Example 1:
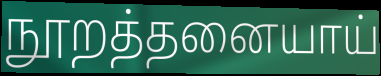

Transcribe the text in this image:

நூறத்தனையாய்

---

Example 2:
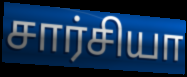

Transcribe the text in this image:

சார்சியா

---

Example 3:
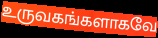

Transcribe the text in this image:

உருவகங்களாகவே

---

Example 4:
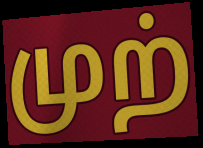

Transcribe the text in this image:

முற்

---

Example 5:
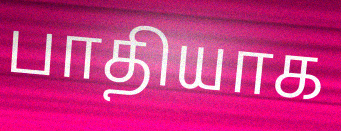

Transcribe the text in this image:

பாதியாக